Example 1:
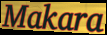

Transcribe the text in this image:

Makara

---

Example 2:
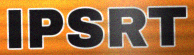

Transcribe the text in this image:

IPSRT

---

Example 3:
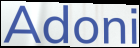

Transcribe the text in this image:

Adoni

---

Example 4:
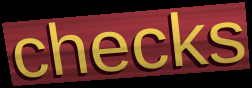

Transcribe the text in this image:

checks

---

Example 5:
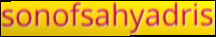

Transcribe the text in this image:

sonofsahyadris